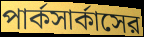
পার্কসার্কাসের